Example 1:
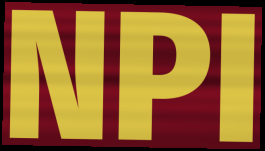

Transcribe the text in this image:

NPI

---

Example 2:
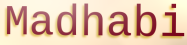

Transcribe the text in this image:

Madhabi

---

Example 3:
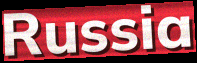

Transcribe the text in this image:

Russia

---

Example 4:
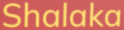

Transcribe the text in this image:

Shalaka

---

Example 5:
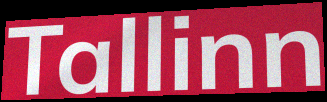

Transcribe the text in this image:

Tallinn